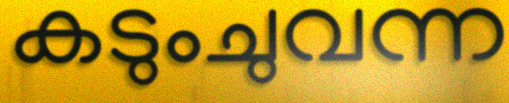
കടുംചുവന്ന